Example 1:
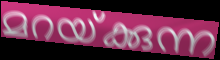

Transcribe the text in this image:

മറയ്‌ക്കുന്ന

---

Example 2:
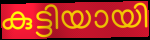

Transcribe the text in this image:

കുട്ടിയായി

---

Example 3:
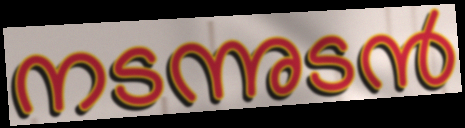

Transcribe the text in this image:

നടന്നുടൻ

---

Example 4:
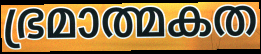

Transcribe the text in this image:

ഭ്രമാത്മകത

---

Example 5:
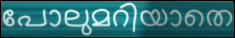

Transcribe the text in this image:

പോലുമറിയാതെ